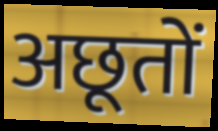
अछूतों